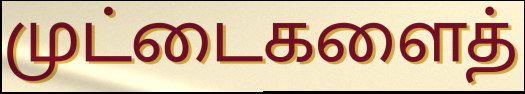
முட்டைகளைத்